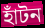
হাঁটন